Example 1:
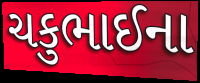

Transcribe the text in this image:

ચકુભાઈના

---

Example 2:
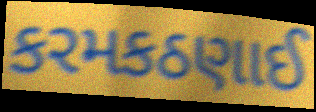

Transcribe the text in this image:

કરમકઠણાઈ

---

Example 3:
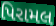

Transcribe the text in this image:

પિરામલ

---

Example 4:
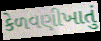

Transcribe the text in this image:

કેળવણીખાતું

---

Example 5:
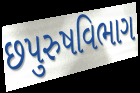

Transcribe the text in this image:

છપુરુષવિભાગ